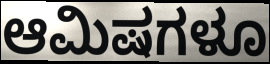
ಆಮಿಷಗಳೂ